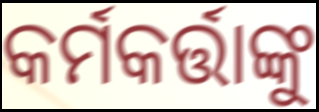
କର୍ମକର୍ତ୍ତାଙ୍କୁ